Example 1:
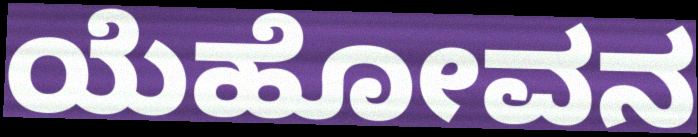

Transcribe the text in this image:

ಯೆಹೋವನ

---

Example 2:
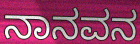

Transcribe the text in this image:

ನಾನವನ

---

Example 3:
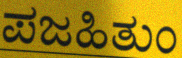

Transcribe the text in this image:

ಪಜಹಿತುಂ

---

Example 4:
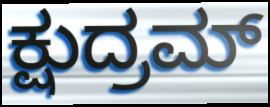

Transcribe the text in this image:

ಕ್ಷುದ್ರಮ್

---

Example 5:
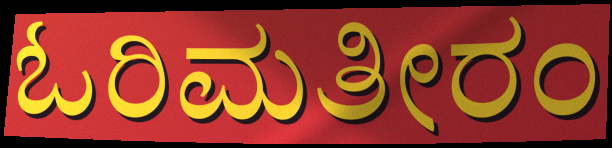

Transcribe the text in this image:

ಓರಿಮತೀರಂ